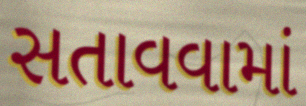
સતાવવામાં